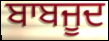
ਬਾਬਜੂਦ